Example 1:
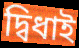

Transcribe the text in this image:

দ্বিধাই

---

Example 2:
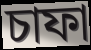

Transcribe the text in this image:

চাফা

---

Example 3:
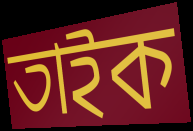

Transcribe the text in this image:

তাইক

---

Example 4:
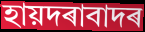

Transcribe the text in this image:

হায়দৰাবাদৰ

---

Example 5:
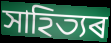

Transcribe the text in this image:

সাহিত্যৰ